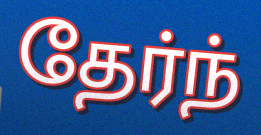
தேர்ந்